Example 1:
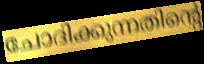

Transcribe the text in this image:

ചോദിക്കുന്നതിന്റെ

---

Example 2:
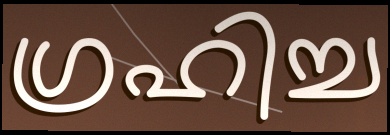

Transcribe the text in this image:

ഗ്രഹിച്ച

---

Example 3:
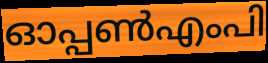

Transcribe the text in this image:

ഓപ്പൺഎംപി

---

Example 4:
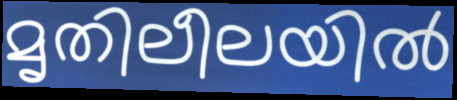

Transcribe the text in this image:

മൃതിലീലയിൽ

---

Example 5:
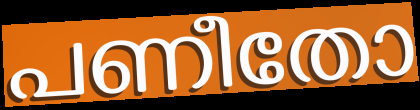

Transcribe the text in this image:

പണീതോ